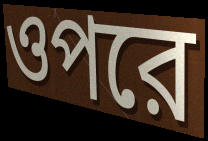
ওপরে